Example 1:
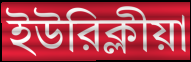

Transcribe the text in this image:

ইউরিক্লীয়া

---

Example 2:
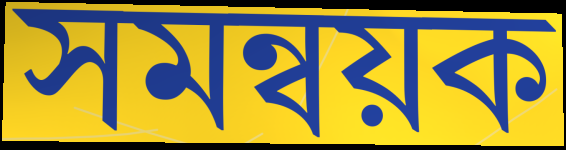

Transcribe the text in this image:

সমন্বয়ক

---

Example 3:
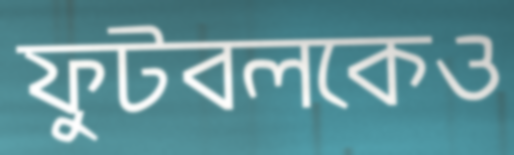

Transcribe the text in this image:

ফুটবলকেও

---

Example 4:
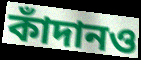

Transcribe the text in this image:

কাঁদানও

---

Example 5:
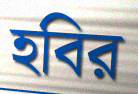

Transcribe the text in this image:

হবির